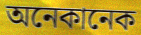
অনেকানেক